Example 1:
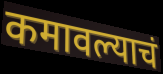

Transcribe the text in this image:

कमावल्याचं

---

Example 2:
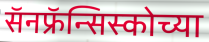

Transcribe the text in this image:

सॅनफ्रॅन्सिस्कोच्या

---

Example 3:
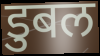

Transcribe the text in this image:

डुबल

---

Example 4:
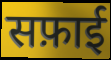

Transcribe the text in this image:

सफ़ाई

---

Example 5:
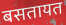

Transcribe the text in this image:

बसतायत